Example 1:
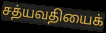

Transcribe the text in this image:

சத்யவதியைக்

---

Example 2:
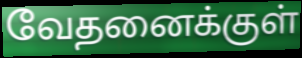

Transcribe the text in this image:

வேதனைக்குள்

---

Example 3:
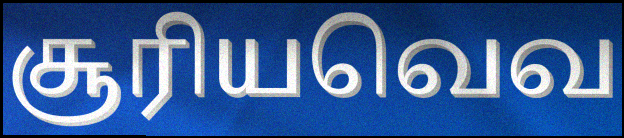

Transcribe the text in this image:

சூரியவெவ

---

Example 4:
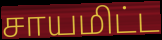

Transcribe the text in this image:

சாயமிட்ட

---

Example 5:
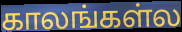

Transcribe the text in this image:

காலங்கள்ல